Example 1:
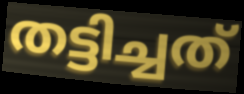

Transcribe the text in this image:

തട്ടിച്ചത്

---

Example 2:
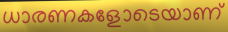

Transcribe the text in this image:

ധാരണകളോടെയാണ്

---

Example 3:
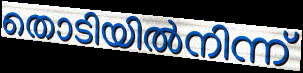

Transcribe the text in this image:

തൊടിയിൽനിന്ന്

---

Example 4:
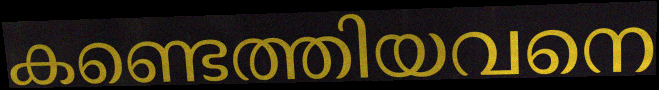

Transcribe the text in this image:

കണ്ടെത്തിയവനെ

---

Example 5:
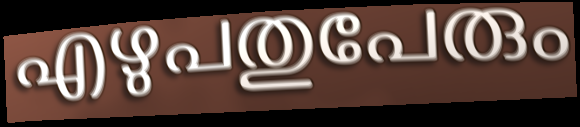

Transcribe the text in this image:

എഴുപതുപേരും